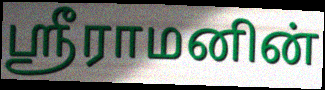
ஸ்ரீராமனின்